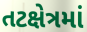
તટક્ષેત્રમાં